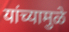
यांच्यामुळे